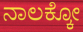
ನಾಲಕ್ಕೋ